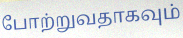
போற்றுவதாகவும்